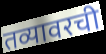
तव्यावरची